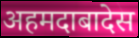
अहमदाबादेस